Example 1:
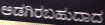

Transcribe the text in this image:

ಅಡಗಿರಬಹುದಾದ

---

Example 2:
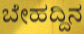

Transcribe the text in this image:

ಬೇಹದ್ದಿನ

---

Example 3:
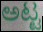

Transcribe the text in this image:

ಅಟ್ಟ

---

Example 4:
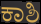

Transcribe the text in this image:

ಕಾಶಿ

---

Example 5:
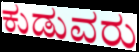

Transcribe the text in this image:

ಕುಡುವರು